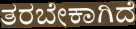
ತರಬೇಕಾಗಿದೆ